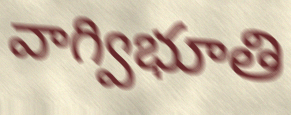
వాగ్విభూతి